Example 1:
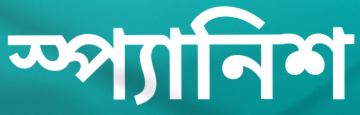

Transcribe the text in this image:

স্প্যানিশ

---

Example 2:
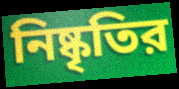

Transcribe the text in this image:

নিষ্কৃতির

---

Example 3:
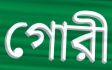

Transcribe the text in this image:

গোরী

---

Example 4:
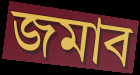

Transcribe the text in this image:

জমাব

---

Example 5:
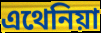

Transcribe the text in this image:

এথেনিয়া